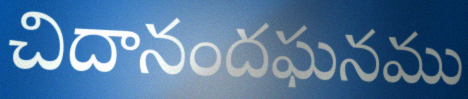
చిదానందఘనము